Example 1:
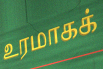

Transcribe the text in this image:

உரமாகக்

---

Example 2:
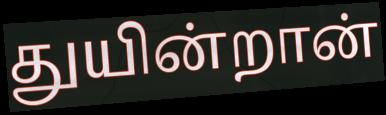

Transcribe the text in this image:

துயின்றான்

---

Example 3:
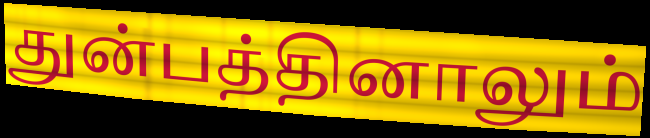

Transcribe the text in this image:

துன்பத்தினாலும்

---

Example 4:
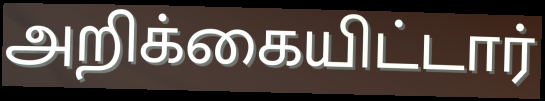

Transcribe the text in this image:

அறிக்கையிட்டார்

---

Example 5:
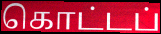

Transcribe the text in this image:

கொட்டப்